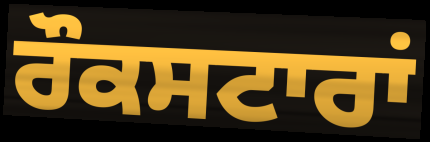
ਰੌਕਸਟਾਰਾਂ